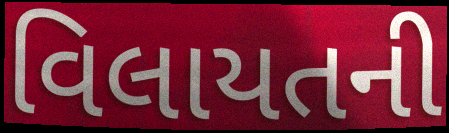
વિલાયતની